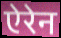
ऐरेन